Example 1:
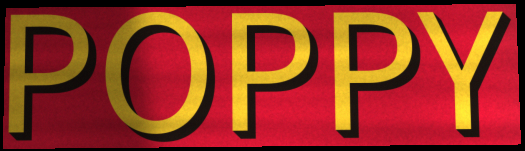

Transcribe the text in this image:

POPPY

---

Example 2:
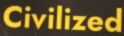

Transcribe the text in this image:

Civilized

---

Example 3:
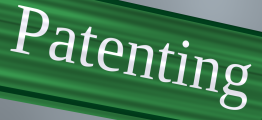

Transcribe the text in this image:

Patenting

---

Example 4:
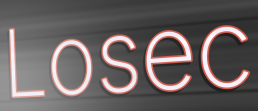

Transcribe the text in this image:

Losec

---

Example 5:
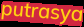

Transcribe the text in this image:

putrasya